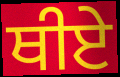
ਥੀਏ